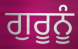
ਗੁਰੂਨੂੰ